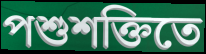
পশুশক্তিতে